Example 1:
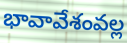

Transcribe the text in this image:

భావావేశంవల్ల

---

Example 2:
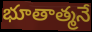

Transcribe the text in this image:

భూతాత్మనే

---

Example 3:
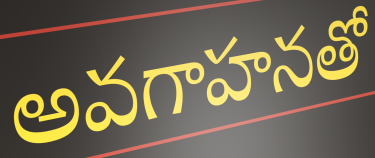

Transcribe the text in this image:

అవగాహనతో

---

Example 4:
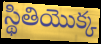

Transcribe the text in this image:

స్థితియొక్క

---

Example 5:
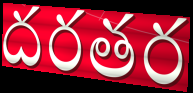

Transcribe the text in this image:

దరతర